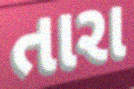
તારા